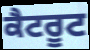
ਕੈਟਰੂਟ